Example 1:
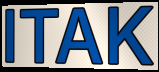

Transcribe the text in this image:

ITAK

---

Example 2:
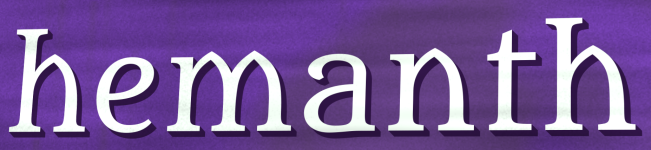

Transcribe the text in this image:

hemanth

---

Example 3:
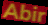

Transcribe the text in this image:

Abir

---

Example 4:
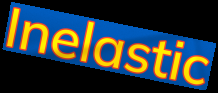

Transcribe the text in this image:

Inelastic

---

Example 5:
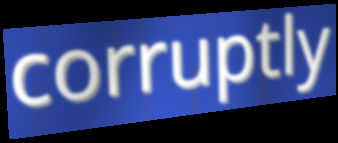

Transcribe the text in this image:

corruptly